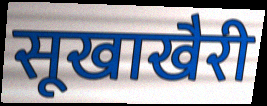
सूखाखैरी